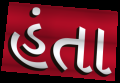
હંતા